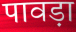
पावड़ा